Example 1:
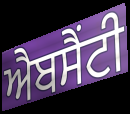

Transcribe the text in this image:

ਐਬਸੈਂਟੀ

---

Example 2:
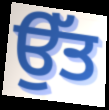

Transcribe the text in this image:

ਉੱਤ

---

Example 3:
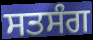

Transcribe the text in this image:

ਸਤਸੰਗ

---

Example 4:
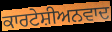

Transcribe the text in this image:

ਕਾਰਟੇਸ਼ੀਅਨਵਾਦ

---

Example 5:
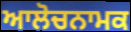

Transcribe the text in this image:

ਆਲੋਚਨਾਮਕ